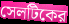
সেলটিকের